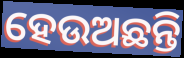
ହେଉଅଛନ୍ତି